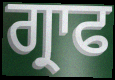
ਗ੍ਰਾਫ